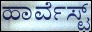
ಹಾರ್ವೆಸ್ಟ್